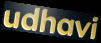
udhavi